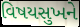
વિષયસુખને